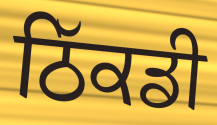
ਠਿੱਕਡੀ